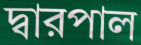
দ্বারপাল